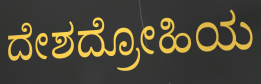
ದೇಶದ್ರೋಹಿಯ